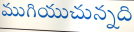
ముగియుచున్నది